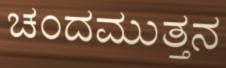
ಚಂದಮುತ್ತನ